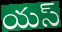
యస్